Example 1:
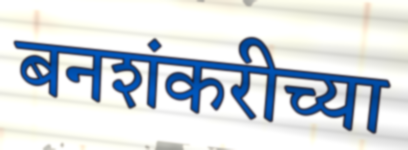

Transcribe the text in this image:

बनशंकरीच्या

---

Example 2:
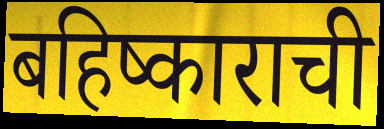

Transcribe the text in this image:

बहिष्काराची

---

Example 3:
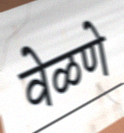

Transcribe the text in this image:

वेळणे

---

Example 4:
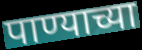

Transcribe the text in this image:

पाण्याच्या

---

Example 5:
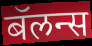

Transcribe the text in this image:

बॅलन्स